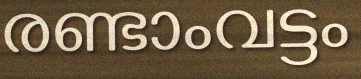
രണ്ടാംവട്ടം